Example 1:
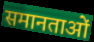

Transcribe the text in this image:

समानताओं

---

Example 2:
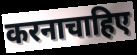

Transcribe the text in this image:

करनाचाहिए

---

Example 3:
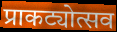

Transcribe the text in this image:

प्राकट्योत्सव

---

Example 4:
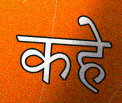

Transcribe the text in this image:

कहे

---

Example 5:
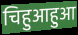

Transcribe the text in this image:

चिहुआहुआ